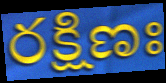
రక్షిణః